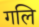
गलि